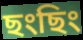
ছংছিং